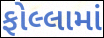
ફોલ્લામાં